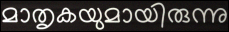
മാതൃകയുമായിരുന്നു